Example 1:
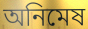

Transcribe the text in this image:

অনিমেষ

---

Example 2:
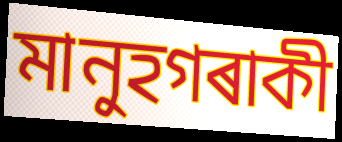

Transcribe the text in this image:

মানুহগৰাকী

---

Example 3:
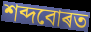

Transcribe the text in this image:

শব্দবোৰত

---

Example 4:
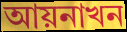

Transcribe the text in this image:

আয়নাখন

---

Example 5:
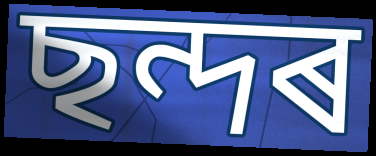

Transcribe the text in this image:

ছন্দৰ